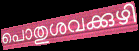
പൊതുശവക്കുഴി